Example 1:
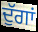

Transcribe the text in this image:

ਦੁੱਗਾਂ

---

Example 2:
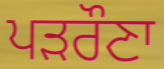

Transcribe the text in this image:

ਪੜਰੌਣਾ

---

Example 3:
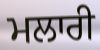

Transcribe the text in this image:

ਮਲਾਰੀ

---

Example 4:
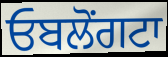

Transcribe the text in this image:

ਓਬਲੋਂਗਟਾ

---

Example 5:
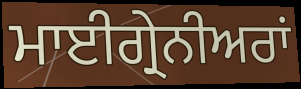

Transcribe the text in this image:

ਮਾਈਗ੍ਰੇਨੀਅਰਾਂ